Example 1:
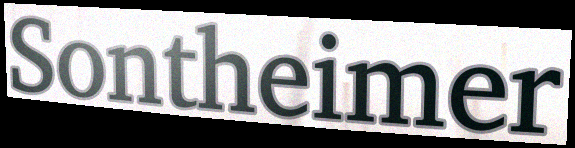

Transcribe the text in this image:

Sontheimer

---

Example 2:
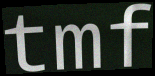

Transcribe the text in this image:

tmf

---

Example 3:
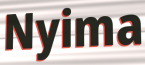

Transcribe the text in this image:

Nyima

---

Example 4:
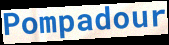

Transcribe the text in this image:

Pompadour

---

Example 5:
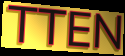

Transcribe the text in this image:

TTEN